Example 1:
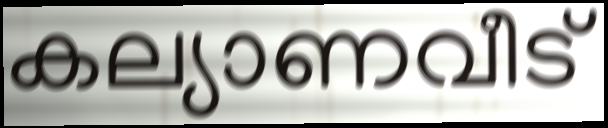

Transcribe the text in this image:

കല്യാണവീട്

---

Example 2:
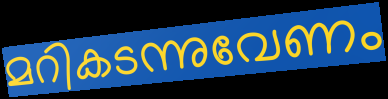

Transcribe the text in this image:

മറികടന്നുവേണം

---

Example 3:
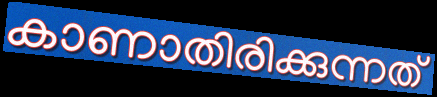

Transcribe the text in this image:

കാണാതിരിക്കുന്നത്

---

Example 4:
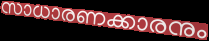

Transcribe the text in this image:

സാധാരണക്കാരനും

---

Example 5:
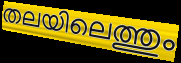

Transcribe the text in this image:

തലയിലെത്തും